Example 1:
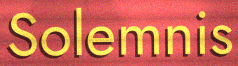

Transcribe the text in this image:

Solemnis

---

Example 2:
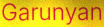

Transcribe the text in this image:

Garunyan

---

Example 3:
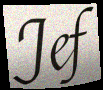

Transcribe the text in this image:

Jef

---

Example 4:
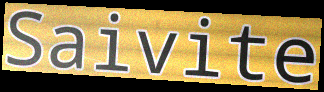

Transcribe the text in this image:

Saivite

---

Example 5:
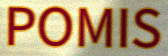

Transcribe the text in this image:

POMIS